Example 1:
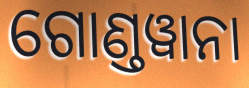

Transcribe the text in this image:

ଗୋଣ୍ଡୱାନା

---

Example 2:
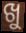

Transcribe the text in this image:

ଖୁ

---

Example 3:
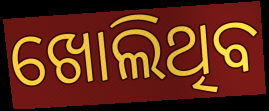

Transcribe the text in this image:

ଖୋଲିଥିବ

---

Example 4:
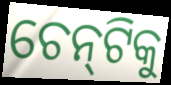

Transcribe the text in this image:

ଚେନ୍‌ଟିକୁ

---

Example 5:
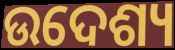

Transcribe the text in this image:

ଉଦେଶ୍ୟ